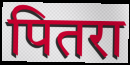
पितरा